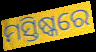
ମସ୍ତିଷ୍କରେ